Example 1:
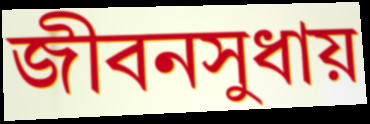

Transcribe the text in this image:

জীবনসুধায়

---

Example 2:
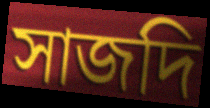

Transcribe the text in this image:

সাজদি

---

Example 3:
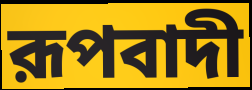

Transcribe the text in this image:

রূপবাদী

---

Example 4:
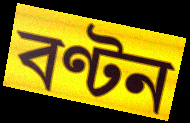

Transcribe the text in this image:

বণ্টন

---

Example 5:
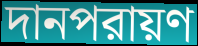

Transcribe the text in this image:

দানপরায়ণ